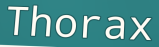
Thorax